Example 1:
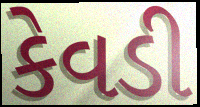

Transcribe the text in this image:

કેવડી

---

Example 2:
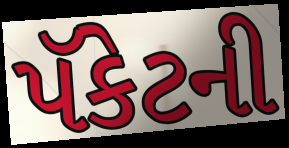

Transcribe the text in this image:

પૅકેટની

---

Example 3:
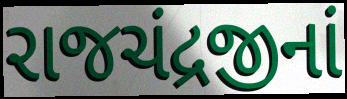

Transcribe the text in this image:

રાજચંદ્રજીનાં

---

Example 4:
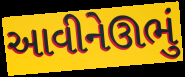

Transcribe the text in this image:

આવીનેઊભું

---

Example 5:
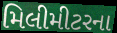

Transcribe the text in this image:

મિલીમીટરના